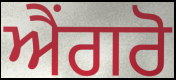
ਐਂਗਰੋ